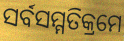
ସର୍ବସମ୍ମତିକ୍ରମେ